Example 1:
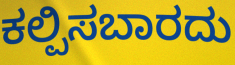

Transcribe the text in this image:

ಕಲ್ಪಿಸಬಾರದು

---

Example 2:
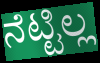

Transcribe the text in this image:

ನೆಟ್ಟಿಲ್ಲ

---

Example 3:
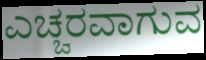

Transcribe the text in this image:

ಎಚ್ಚರವಾಗುವ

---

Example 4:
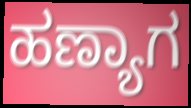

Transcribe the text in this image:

ಹಣ್ಯಾಗ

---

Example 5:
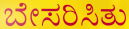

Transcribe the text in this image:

ಬೇಸರಿಸಿತು